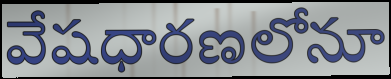
వేషధారణలోనూ